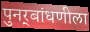
पुनर्बांधणीला